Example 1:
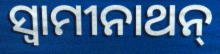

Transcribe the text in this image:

ସ୍ବାମୀନାଥନ୍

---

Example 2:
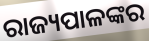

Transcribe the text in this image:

ରାଜ୍ୟପାଳଙ୍କର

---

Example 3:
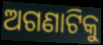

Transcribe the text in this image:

ଅଗଣାଟିକୁ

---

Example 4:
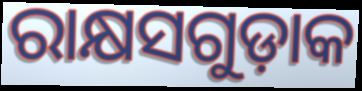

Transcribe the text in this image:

ରାକ୍ଷସଗୁଡ଼ାକ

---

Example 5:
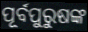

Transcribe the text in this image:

ପୂର୍ବପୁରୁଷଙ୍କ